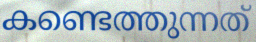
കണ്ടെത്തുന്നത്